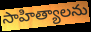
సాహిత్యాలను